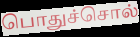
பொதுச்சொல்